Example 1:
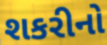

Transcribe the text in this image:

શકરીનો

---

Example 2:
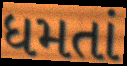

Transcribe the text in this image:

ધમતાં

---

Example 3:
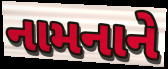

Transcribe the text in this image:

નામનાને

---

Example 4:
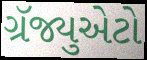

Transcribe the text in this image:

ગ્રૅજ્યુએટો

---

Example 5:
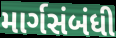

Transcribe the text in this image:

માર્ગસંબંધી